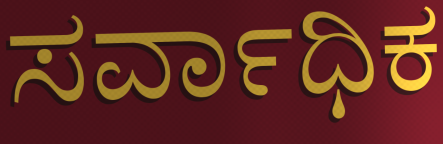
ಸರ್ವಾಧಿಕ